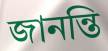
জানন্তি